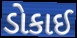
ડોકાઈ